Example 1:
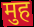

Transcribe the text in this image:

मुह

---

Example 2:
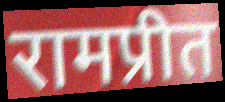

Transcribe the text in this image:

रामप्रीत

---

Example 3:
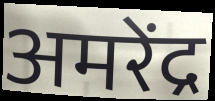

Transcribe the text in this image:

अमरेंद्र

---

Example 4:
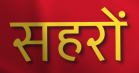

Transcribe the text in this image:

सहरों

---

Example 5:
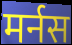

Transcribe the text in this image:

मर्नस